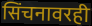
सिंचनावरही